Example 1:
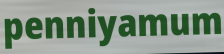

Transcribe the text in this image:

penniyamum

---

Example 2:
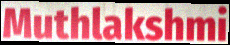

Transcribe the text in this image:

Muthlakshmi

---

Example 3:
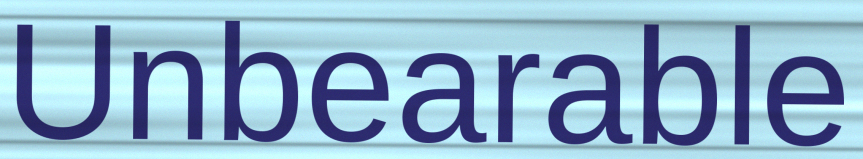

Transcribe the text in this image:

Unbearable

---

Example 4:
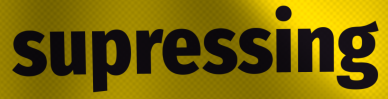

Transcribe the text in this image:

supressing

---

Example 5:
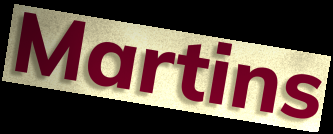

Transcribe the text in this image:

Martins